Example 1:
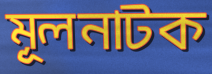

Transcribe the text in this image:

মূলনাটক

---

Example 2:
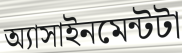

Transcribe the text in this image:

অ্যাসাইনমেন্টটা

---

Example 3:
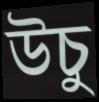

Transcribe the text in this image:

উচু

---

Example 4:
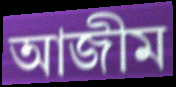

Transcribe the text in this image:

আজীম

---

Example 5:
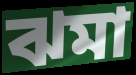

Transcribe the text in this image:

ঝমা